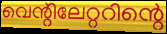
വെന്റിലേറ്ററിന്റെ